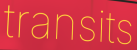
transits